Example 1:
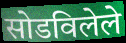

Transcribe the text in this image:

सोडविलेले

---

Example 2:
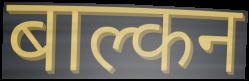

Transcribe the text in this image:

बाल्कन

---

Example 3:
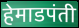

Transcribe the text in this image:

हेमाडपंती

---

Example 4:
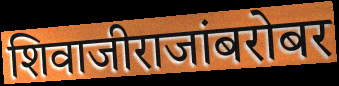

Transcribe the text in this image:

शिवाजीराजांबरोबर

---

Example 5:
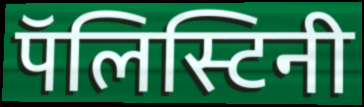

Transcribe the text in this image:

पॅलिस्टिनी